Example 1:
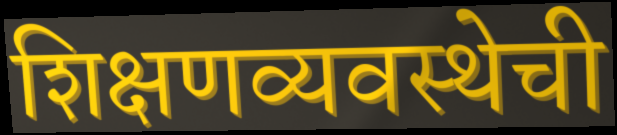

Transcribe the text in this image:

शिक्षणव्यवस्थेची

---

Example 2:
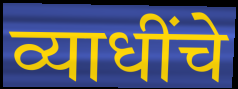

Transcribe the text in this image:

व्याधींचे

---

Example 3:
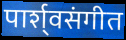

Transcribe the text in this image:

पार्श्वसंगीत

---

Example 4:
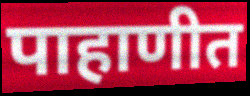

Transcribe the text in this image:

पाहाणीत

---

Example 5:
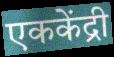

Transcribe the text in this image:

एककेंद्री